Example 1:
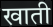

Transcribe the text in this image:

खाती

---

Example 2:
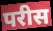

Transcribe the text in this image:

परीस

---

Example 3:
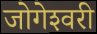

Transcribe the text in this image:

जोगेश्‍वरी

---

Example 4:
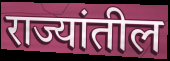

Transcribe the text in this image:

राज्यांतील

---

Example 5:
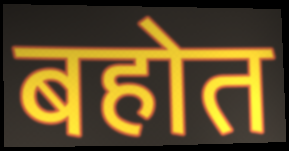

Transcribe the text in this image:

बहोत